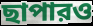
ছাপারও